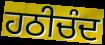
ਹਠੀਚੰਦ